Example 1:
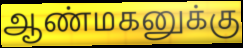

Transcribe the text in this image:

ஆண்மகனுக்கு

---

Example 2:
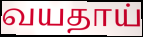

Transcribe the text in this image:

வயதாய்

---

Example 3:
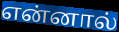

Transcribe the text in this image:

என்னால்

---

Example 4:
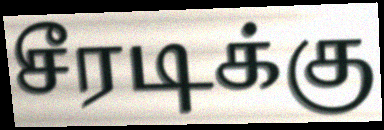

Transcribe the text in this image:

சீரடிக்கு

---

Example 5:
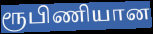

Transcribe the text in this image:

ரூபிணியான